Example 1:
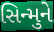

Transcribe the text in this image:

સિન્મુને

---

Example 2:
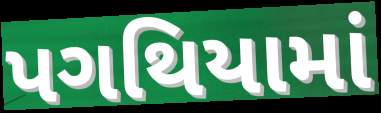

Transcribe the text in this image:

પગથિયામાં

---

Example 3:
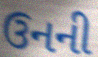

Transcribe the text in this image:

ઉનની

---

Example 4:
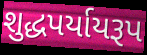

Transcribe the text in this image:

શુદ્ધપર્યાયરૂપ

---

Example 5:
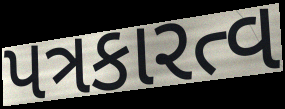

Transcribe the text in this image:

પત્રકારત્વ